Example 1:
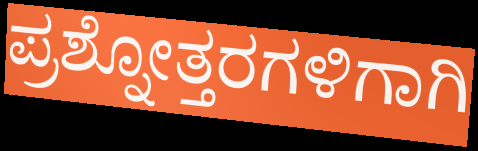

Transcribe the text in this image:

ಪ್ರಶ್ನೋತ್ತರಗಳಿಗಾಗಿ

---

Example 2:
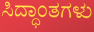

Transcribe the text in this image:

ಸಿದ್ಧಾಂತಗಳು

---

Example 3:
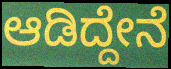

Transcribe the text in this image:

ಆಡಿದ್ದೇನೆ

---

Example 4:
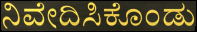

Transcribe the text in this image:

ನಿವೇದಿಸಿಕೊಂಡು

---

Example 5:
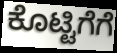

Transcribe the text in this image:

ಕೊಟ್ಟಿಗೆಗೆ